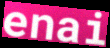
enai